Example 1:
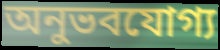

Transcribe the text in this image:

অনুভবযোগ্য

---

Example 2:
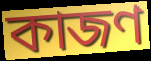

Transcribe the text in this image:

কাজণ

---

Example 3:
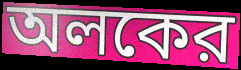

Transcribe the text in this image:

অলকের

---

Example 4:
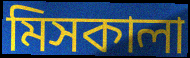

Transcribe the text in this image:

মিসকালা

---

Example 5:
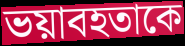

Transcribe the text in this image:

ভয়াবহতাকে